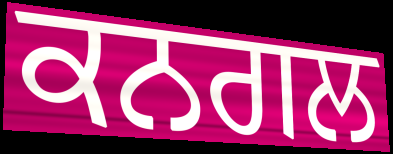
ਕਨਗਲ